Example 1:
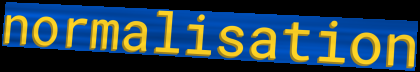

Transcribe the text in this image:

normalisation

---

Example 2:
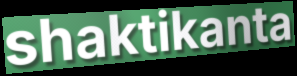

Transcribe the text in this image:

shaktikanta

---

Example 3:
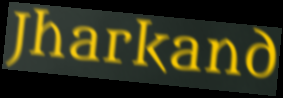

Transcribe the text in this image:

Jharkand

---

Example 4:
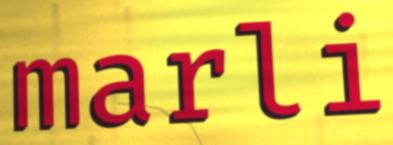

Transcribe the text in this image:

marli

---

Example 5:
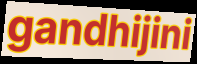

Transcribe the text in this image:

gandhijini